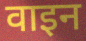
वाइन